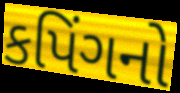
કપિંગનો